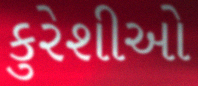
કુરેશીઓ